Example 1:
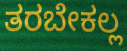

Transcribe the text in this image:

ತರಬೇಕಲ್ಲ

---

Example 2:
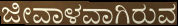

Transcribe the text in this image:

ಜೀವಾಳವಾಗಿರುವ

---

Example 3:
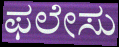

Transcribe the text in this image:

ಫಲೇಸು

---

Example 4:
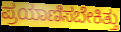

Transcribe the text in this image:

ಪ್ರಯಾಣಿಸಬೇಕಿತ್ತು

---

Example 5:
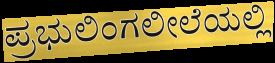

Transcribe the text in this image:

ಪ್ರಭುಲಿಂಗಲೀಲೆಯಲ್ಲಿ